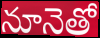
నూనెతో